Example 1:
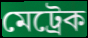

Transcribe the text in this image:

মেট্রেক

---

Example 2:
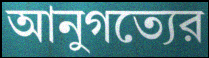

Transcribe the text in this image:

আনুগত্যের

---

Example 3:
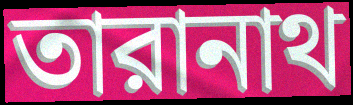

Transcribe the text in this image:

তারানাথ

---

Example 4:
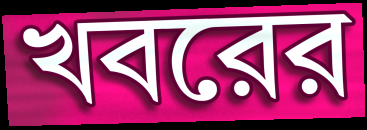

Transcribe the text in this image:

খবরের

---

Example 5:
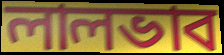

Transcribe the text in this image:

লালভাব